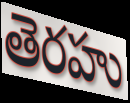
తెరహు